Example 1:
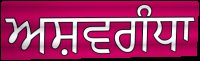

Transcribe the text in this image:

ਅਸ਼ਵਗੰਧਾ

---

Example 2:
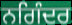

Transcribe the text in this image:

ਨਗਿੰਦਰ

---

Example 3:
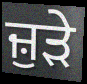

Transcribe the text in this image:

ਜ਼ੁੜੇ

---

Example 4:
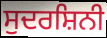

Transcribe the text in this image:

ਸੁਦਰਸ਼ਿਨੀ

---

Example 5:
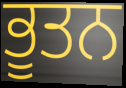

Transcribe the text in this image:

ਭੂਤਨ